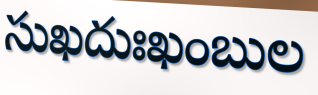
సుఖదుఃఖంబుల